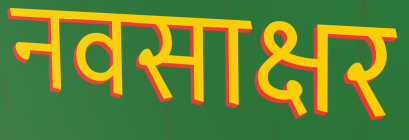
नवसाक्षर